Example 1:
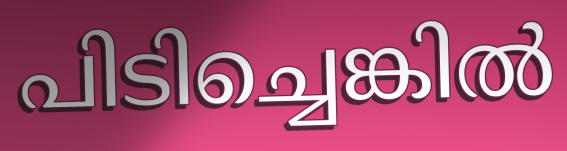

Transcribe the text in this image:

പിടിച്ചെങ്കിൽ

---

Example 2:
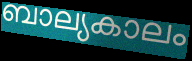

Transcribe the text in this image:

ബാല്യകാലം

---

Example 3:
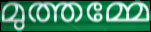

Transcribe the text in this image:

മുത്തമ്മേ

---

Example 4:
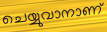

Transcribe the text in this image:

ചെയ്യുവാനാണ്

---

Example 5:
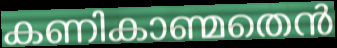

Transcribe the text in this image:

കണികാണ്മതെൻ